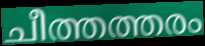
ചീത്തത്തരം